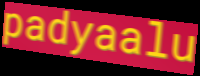
padyaalu